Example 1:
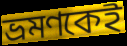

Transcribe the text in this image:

ভ্রমণকেই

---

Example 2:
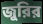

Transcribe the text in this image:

জুরির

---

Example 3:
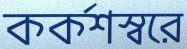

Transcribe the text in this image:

কর্কশস্বরে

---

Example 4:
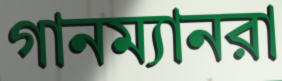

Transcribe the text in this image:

গানম্যানরা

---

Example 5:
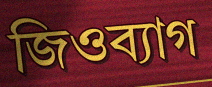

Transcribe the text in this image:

জিওব্যাগ